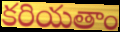
కరియతాం